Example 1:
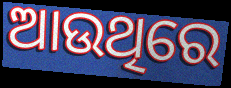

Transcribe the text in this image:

ଆଉଥିରେ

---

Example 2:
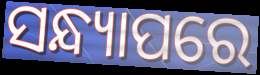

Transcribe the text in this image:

ସନ୍ଧ୍ୟାପରେ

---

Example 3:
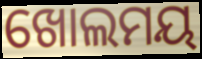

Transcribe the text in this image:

ଖୋଲମୟ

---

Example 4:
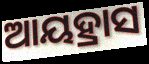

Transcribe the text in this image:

ଆୟହ୍ରାସ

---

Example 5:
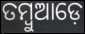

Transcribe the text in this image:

ତମ୍ବୁଆଡ଼େ